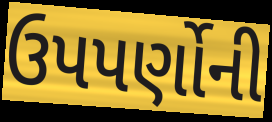
ઉપપર્ણોની